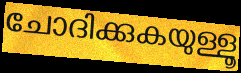
ചോദിക്കുകയുള്ളൂ